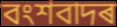
বংশবাদৰ